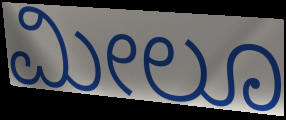
ಮೀಲೂ